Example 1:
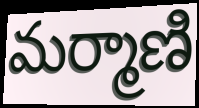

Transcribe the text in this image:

మర్మాణి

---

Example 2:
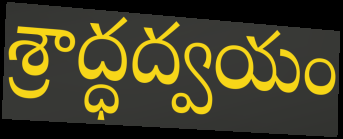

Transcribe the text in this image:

శ్రాద్ధద్వయం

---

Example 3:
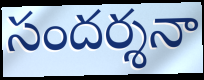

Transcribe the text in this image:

సందర్శనా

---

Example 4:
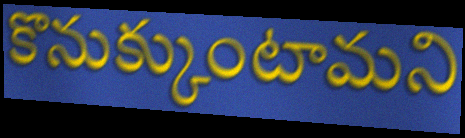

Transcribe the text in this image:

కొనుక్కుంటామని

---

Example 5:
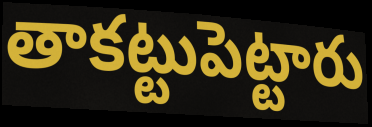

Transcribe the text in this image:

తాకట్టుపెట్టారు